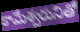
కామేశ్వరునితో